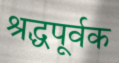
श्रद्धपूर्वक